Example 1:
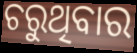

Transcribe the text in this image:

ଚରୁଥିବାର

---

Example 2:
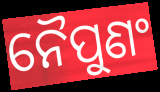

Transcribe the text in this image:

ନୈପୁଣଂ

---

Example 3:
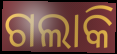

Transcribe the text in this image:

ଗଲାକି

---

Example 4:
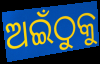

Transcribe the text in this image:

ଅଇଁଠୁକୁ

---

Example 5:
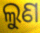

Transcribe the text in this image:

ଲୁଣ